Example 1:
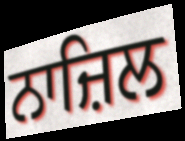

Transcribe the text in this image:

ਨਾਜ਼ਿਲ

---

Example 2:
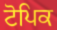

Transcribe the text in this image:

ਟੋਪਿਕ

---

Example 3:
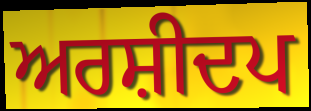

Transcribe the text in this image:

ਅਰਸ਼ੀਦਪ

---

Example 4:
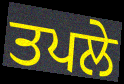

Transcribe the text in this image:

ਤਪਲੇ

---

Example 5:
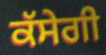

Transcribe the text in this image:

ਕੱਸੇਗੀ